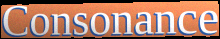
Consonance